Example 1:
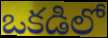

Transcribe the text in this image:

ఒకడిలో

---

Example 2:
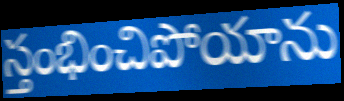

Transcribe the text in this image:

స్తంభించిపోయాను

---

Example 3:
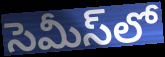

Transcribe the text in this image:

సెమీస్‌లో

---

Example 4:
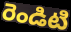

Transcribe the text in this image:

రెండిటి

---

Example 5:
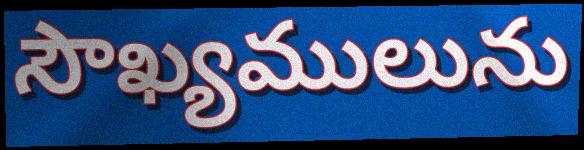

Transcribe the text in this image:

సౌఖ్యములును